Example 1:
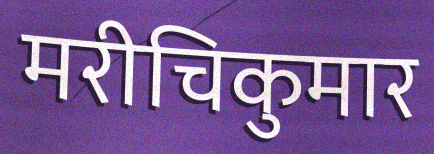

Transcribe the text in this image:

मरीचिकुमार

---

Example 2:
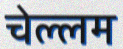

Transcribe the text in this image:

चेल्लम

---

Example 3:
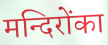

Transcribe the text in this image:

मन्दिरोंका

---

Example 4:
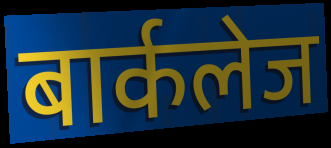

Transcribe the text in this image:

बार्कलेज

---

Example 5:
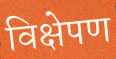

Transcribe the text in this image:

विक्षेपण